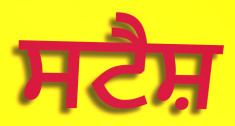
ਸਟੈਸ਼